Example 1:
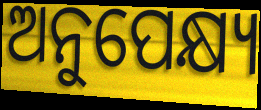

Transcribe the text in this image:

ଅନୁପେକ୍ଷ୍ୟ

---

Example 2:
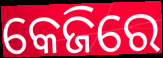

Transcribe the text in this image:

କେଜିରେ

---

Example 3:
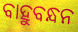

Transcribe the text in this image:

ବାହୁବନ୍ଧନ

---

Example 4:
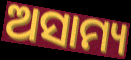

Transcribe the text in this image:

ଅସାମ୍ୟ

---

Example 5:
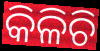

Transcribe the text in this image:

କିଳିଚି